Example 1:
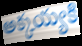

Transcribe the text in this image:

అక్కయ్యకి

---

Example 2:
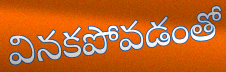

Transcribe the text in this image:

వినకపోవడంతో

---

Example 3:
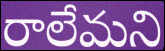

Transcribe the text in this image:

రాలేమని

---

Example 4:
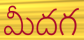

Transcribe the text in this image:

మీదగ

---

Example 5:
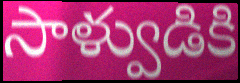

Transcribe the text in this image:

సాళ్వుడికి